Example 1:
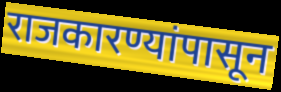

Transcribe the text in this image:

राजकारण्यांपासून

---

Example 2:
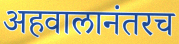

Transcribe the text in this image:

अहवालानंतरच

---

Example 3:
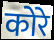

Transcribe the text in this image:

कोरे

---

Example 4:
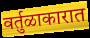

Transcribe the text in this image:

वर्तुळाकारात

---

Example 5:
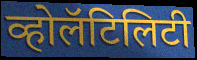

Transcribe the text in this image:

व्होलॅटिलिटी